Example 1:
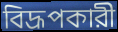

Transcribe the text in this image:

বিদ্রূপকারী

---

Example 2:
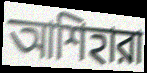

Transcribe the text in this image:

আশিহারা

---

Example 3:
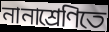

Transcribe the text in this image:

নানাশ্রেণিতে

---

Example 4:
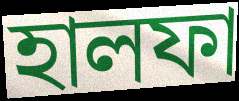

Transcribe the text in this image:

হালফা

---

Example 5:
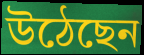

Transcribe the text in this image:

উঠেছেন